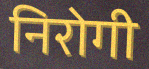
निरोगी